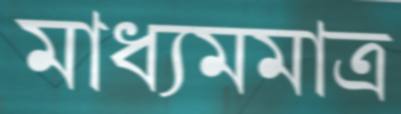
মাধ্যমমাত্র